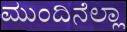
ಮುಂದಿನೆಲ್ಲಾ